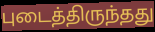
புடைத்திருந்தது